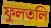
ফুলতলি